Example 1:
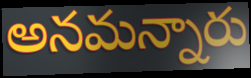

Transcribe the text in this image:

అనమన్నారు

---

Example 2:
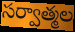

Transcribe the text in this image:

సర్వాత్మల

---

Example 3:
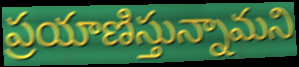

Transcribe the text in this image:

ప్రయాణిస్తున్నామని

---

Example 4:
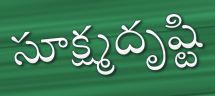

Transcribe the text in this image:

సూక్ష్మదృష్టి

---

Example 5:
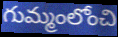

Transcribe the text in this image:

గుమ్మంలోంచి